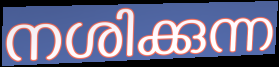
നശിക്കുന്ന